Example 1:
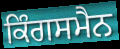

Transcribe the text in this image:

ਕਿੰਗਸਮੈਨ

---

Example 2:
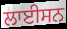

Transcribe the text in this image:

ਲਾਈਸਨ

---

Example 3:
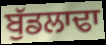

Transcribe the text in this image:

ਬੁੱਡਲਾਢਾ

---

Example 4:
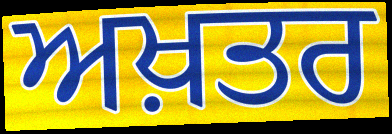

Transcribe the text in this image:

ਅਖ਼ਤਰ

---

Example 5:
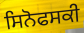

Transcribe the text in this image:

ਸਿਨੋਫਸਕੀ